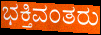
ಭಕ್ತಿವಂತರು